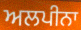
ਅਲਪੀਨਾ